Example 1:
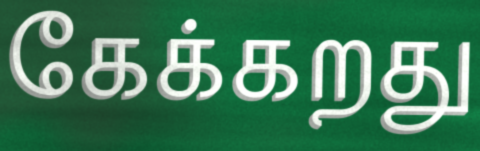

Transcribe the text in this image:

கேக்கறது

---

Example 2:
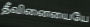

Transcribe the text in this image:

தீவினையையே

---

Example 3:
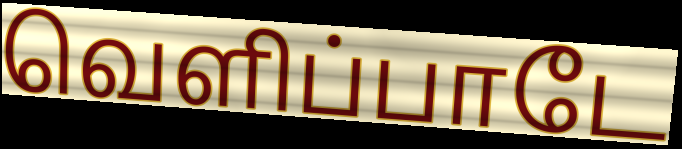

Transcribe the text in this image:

வெளிப்பாடே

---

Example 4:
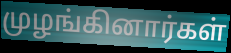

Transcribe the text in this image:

முழங்கினார்கள்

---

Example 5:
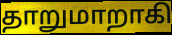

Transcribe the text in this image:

தாறுமாறாகி